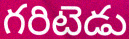
గరిటెడు